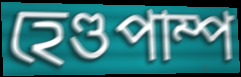
হেণ্ডপাম্প